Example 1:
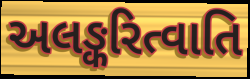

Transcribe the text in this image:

અલઙ્કરિત્વાતિ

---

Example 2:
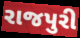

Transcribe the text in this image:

રાજપુરી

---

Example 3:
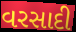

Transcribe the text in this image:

વરસાદી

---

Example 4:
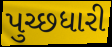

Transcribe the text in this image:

પુચ્છધારી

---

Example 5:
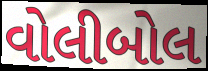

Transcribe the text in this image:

વોલીબોલ